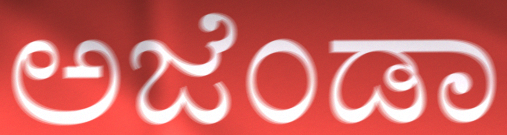
ಅಜೆಂಡಾ